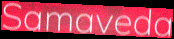
Samaveda